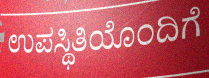
ಉಪಸ್ಥಿತಿಯೊಂದಿಗೆ